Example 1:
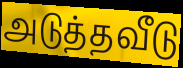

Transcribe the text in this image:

அடுத்தவீடு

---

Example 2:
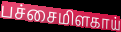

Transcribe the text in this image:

பச்சைமிளகாய்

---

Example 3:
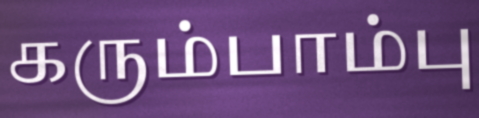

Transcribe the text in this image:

கரும்பாம்பு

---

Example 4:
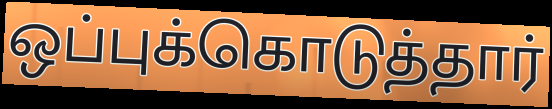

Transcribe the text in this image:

ஒப்புக்கொடுத்தார்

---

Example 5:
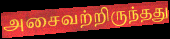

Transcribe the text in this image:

அசைவற்றிருந்தது